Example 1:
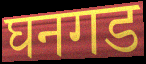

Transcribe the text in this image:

घनगड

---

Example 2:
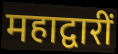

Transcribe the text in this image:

महाद्वारीं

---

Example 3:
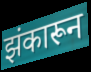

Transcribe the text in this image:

झंकारून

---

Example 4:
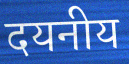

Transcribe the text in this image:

दयनीय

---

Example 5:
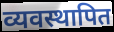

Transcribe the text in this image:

व्यवस्थापित